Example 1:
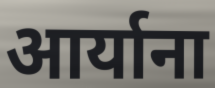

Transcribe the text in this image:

आर्याना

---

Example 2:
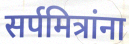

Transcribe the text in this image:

सर्पमित्रांना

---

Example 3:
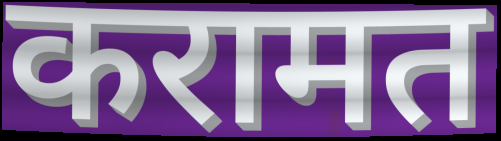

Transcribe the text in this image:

करामत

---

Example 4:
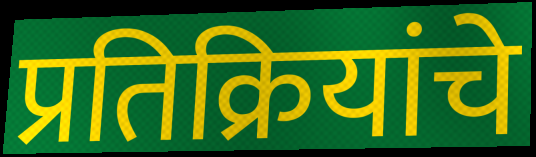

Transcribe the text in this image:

प्रतिक्रियांचे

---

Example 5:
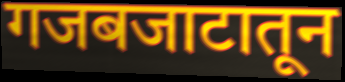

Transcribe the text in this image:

गजबजाटातून